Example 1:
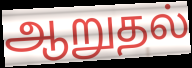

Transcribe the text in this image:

ஆறுதல்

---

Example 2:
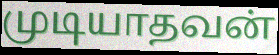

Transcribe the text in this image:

முடியாதவன்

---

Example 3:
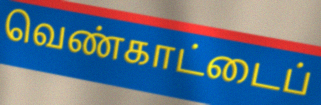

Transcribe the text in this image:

வெண்காட்டைப்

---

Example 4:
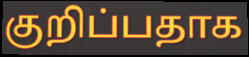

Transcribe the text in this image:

குறிப்பதாக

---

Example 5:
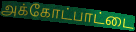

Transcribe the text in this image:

அக்கோட்பாட்டை